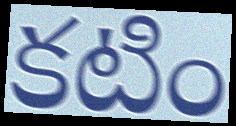
కటిం